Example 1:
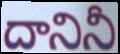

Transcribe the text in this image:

దానినీ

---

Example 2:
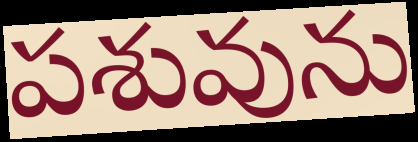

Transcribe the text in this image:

పశువును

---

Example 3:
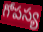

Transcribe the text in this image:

గోపస్య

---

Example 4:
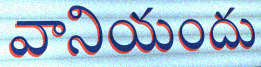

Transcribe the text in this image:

వానియందు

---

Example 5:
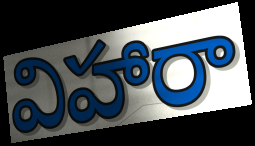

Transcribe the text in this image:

విహారా